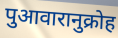
पुआवारानुक्रोह